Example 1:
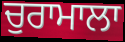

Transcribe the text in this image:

ਚੁਰਾਮਾਲਾ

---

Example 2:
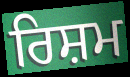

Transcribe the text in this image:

ਰਿਸ਼ਮ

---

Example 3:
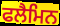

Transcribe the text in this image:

ਫਲੈਮਿਨ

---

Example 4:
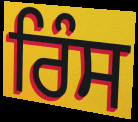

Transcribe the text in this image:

ਰਿੰਸ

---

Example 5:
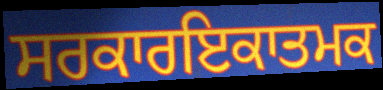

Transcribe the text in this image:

ਸਰਕਾਰਇਕਾਤਮਕ